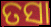
ତସା